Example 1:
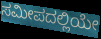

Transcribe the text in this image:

ಸಮೀಪದಲ್ಲಿಯೇ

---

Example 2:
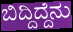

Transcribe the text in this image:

ಬಿದ್ದಿದ್ದೆನು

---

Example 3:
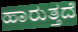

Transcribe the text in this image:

ಹಾರುತ್ತದೆ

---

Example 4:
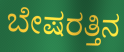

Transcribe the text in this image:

ಬೇಷರತ್ತಿನ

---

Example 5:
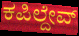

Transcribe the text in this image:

ಕಪಿಲ್ದೇವ್